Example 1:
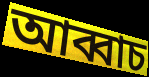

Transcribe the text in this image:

আব্বাচ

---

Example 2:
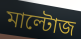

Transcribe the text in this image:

মাল্টোজ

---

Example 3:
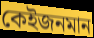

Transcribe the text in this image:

কেইজনমান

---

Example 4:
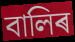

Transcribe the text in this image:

বালিৰ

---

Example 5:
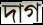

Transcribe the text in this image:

দাগ